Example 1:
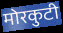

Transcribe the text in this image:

मोरकुटी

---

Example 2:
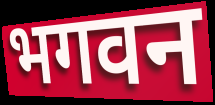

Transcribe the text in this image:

भगवन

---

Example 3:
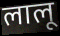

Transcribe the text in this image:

लालू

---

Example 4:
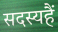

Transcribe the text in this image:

सदस्यहैं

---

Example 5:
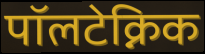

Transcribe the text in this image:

पॉलटेक्निक